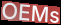
OEMs